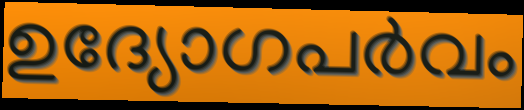
ഉദ്യോഗപർവം